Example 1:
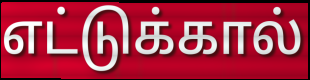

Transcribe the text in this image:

எட்டுக்கால்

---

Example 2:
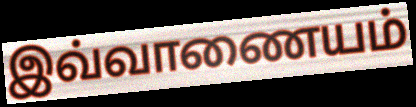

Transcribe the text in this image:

இவ்வாணையம்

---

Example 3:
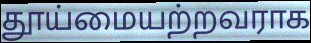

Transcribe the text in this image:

தூய்மையற்றவராக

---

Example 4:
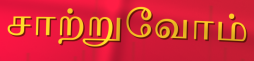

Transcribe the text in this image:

சாற்றுவோம்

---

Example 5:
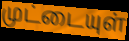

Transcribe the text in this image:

முட்டையுள்